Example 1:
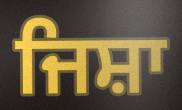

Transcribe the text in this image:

ਜਿਸ਼ਾ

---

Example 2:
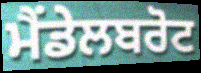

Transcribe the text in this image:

ਮੈਂਡੇਲਬਰੋਟ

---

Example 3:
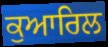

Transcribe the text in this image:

ਕੁਆਰਿਲ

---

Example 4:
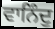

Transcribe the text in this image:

ਵਾਨਿੰਦੁ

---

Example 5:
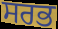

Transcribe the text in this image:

ਸਰਭ